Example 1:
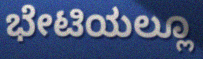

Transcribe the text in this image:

ಭೇಟಿಯಲ್ಲೂ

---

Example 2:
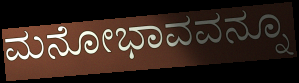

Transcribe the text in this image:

ಮನೋಭಾವವನ್ನೂ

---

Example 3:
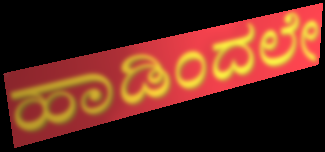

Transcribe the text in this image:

ಹಾಡಿಂದಲೇ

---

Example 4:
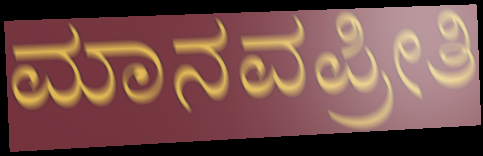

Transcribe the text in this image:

ಮಾನವಪ್ರೀತಿ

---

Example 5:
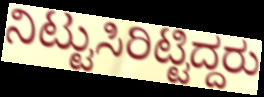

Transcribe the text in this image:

ನಿಟ್ಟುಸಿರಿಟ್ಟಿದ್ದರು